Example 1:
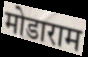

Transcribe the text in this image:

मोडाराम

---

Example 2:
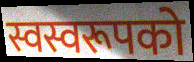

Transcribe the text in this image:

स्वस्वरूपको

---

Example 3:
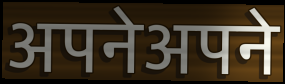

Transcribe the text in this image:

अपनेअपने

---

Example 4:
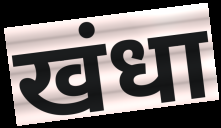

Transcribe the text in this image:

खंधा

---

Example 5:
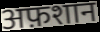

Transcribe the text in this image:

अफ़शान